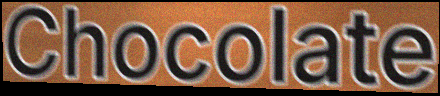
Chocolate